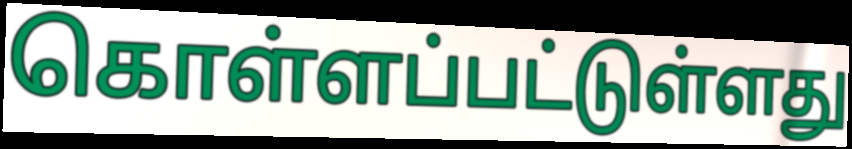
கொள்ளப்பட்டுள்ளது